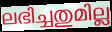
ലഭിച്ചതുമില്ല